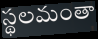
స్థలమంతా